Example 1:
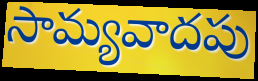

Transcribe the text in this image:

సామ్యవాదపు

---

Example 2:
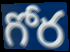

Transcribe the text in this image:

గోర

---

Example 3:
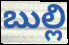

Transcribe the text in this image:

బుల్లి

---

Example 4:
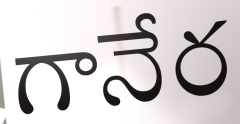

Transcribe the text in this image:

గానేర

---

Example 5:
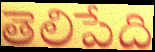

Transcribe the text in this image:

తెలిపేది